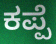
ಕಪ್ಪೆ